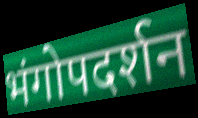
भंगोपदर्शन